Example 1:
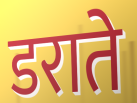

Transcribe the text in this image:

डराते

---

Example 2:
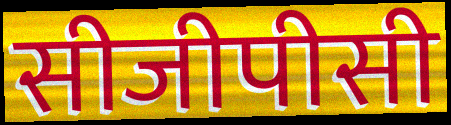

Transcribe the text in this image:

सीजीपीसी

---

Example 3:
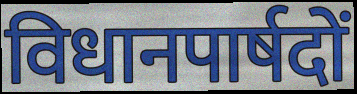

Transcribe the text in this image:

विधानपार्षदों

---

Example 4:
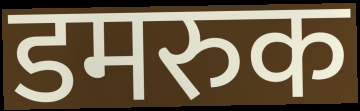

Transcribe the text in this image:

डमरुक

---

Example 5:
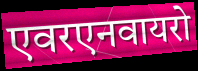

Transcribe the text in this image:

एवरएनवायरो